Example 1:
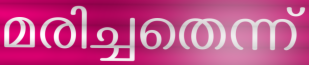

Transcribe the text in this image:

മരിച്ചതെന്ന്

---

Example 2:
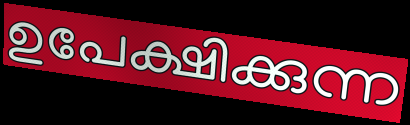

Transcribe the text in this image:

ഉപേക്ഷിക്കുന്ന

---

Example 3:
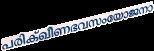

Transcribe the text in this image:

പരിക്ഖീണഭവസംയോജനാ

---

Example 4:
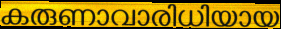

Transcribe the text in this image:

കരുണാവാരിധിയായ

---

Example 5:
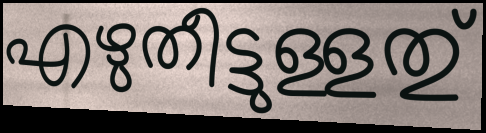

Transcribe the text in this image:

എഴുതീട്ടുള്ളതു്